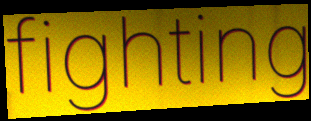
fighting